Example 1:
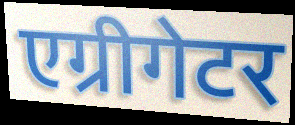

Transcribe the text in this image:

एग्रीगेटर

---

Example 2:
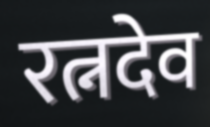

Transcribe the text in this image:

रत्नदेव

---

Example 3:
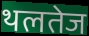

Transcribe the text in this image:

थलतेज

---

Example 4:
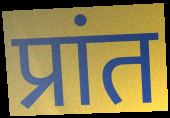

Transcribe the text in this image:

प्रांत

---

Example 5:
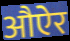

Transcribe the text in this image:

औऐर